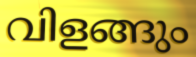
വിളങ്ങും